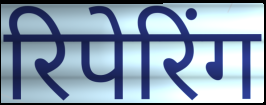
रिपेरिंग